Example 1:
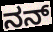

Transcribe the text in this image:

ನನ್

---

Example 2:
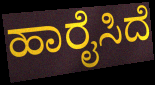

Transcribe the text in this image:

ಹಾರೈಸಿದೆ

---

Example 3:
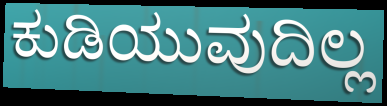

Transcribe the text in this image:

ಕುಡಿಯುವುದಿಲ್ಲ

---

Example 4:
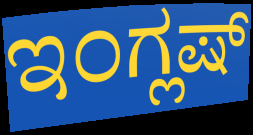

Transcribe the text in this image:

ಇಂಗ್ಲಷ್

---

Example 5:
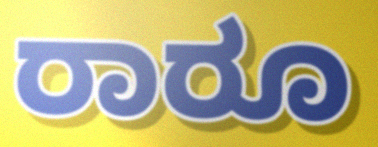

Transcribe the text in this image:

ರಾರೂ